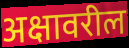
अक्षावरील